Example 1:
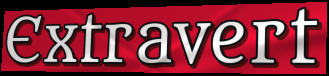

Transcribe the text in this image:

Extravert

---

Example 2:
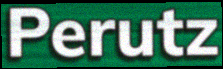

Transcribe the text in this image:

Perutz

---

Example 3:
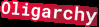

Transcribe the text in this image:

Oligarchy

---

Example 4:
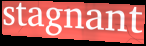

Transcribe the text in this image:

stagnant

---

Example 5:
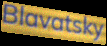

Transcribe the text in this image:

Blavatsky